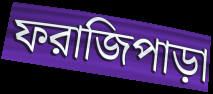
ফরাজিপাড়া